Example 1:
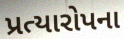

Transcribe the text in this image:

પ્રત્યારોપના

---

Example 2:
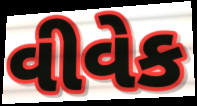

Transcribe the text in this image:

વીવેક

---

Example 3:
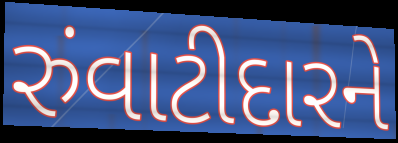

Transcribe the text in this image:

રુંવાટીદારને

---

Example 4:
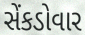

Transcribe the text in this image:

સેંકડોવાર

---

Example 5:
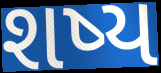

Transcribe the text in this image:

શષ્ય